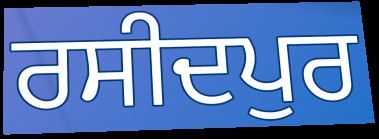
ਰਸੀਦਪੁਰ